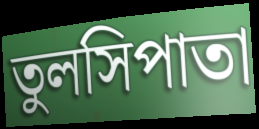
তুলসিপাতা